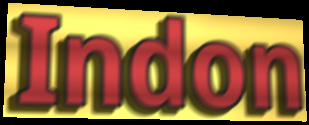
Indon